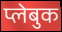
प्लेबुक